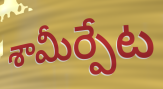
శామీర్పేట